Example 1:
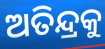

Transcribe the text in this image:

ଅତିନ୍ଦ୍ରକୁ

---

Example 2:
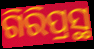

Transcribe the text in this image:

ଗିରିପ୍ରସ୍ଥ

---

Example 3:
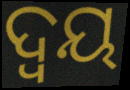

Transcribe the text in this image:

ଦ୍ୱୟ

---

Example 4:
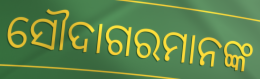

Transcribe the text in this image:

ସୌଦାଗରମାନଙ୍କ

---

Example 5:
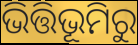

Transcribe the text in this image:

ଭିତ୍ତିଭୂମିରୁ